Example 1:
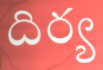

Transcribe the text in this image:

దిర్య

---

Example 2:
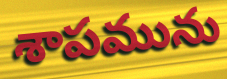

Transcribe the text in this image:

శాపమును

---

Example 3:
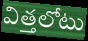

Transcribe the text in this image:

విత్తలోటు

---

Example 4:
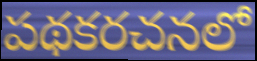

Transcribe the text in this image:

పథకరచనలో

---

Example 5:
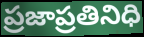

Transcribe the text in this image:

ప్రజాప్రతినిధి